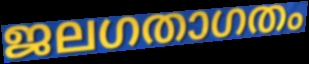
ജലഗതാഗതം